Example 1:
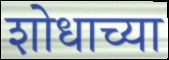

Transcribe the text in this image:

शोधाच्या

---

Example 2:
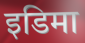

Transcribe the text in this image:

इडिमा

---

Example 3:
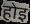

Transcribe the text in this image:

होइ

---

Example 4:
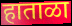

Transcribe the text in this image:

हाताळा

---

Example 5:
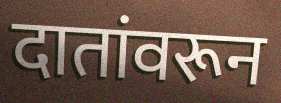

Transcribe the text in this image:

दातांवरून